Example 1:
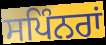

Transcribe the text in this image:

ਸਪਿੰਨਰਾਂ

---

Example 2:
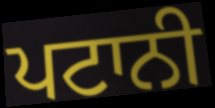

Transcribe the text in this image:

ਪਟਾਨੀ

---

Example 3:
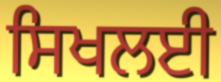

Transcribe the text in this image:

ਸਿਖਲਈ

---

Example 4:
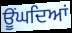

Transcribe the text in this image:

ਊਂਘਦਿਆਂ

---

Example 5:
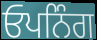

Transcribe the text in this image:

ਓਪਨਿੰਗ